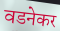
वडनेकर